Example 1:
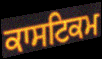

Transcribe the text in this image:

ਕਾਸਟਿਕਮ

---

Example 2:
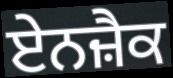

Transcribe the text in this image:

ਏਨਜ਼ੈਕ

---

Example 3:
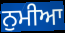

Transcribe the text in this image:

ਨੁਮੀਆ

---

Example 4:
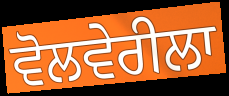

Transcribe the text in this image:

ਵੋਲਵੇਰੀਲਾ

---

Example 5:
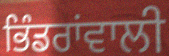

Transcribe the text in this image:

ਭਿੰਡਰਾਂਵਾਲੀ